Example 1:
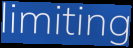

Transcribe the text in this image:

limiting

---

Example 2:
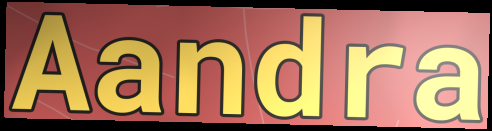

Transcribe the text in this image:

Aandra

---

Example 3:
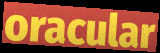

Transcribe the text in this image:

oracular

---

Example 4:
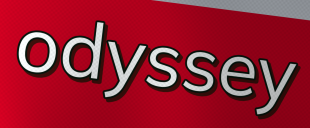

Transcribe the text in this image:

odyssey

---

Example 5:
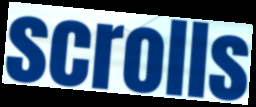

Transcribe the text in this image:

scrolls